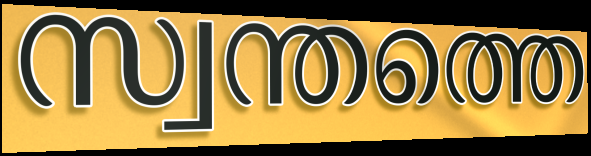
സ്വന്തത്തെ